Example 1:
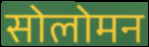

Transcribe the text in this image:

सोलोमन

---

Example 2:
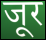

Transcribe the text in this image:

जूर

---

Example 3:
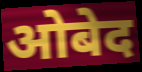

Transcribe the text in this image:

ओबेद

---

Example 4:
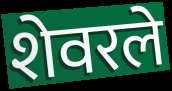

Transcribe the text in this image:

शेवरले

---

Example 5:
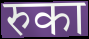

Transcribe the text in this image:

रुका